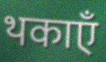
थकाएँ